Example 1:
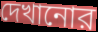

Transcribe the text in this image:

দেখানোর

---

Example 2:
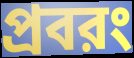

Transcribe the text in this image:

প্রবরং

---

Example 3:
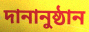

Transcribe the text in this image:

দানানুষ্ঠান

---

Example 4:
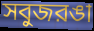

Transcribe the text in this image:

সবুজরঙা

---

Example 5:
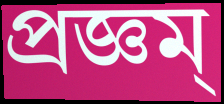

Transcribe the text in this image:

প্রজ্ঞম্